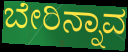
ಬೇರಿನ್ನಾವ